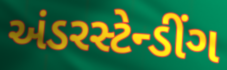
અંડરસ્ટેન્ડીંગ